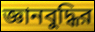
জ্ঞানবুদ্ধির